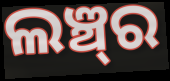
ଲଞ୍ଚ୍‍ର